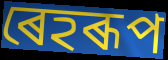
ৰেহৰূপ